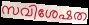
സവിശേഷത